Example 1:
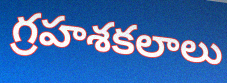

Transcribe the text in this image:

గ్రహశకలాలు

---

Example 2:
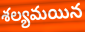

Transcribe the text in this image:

శల్యమయిన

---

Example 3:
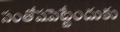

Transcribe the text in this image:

సంతోషపెట్టేందుకు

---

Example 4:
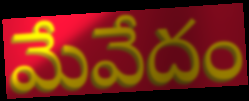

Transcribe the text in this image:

మేవేదం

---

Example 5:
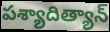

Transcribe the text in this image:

పశ్యాదిత్యాన్